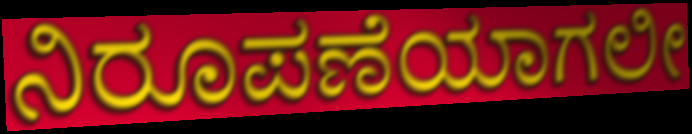
ನಿರೂಪಣೆಯಾಗಲೀ